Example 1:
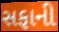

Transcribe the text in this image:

સફાની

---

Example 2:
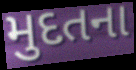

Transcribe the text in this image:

મુદતના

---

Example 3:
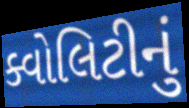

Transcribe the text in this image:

ક્વોલિટીનું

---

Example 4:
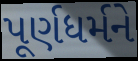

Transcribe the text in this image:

પૂર્ણધર્મને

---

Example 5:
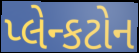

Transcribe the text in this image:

પ્લેન્કટોન